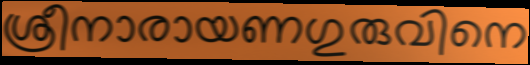
ശ്രീനാരായണഗുരുവിനെ